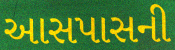
આસપાસની